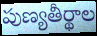
పుణ్యతీర్థాల